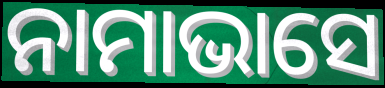
ନାମାଭାସେ